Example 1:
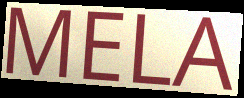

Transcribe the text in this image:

MELA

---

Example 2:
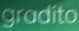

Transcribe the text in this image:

gradito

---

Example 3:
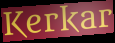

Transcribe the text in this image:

Kerkar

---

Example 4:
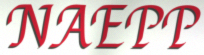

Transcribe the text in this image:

NAEPP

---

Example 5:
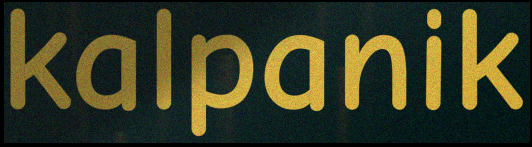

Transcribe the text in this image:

kalpanik